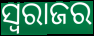
ସ୍ୱରାଜର